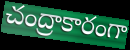
చంద్రాకారంగా